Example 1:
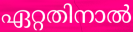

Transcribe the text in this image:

ഏറ്റതിനാൽ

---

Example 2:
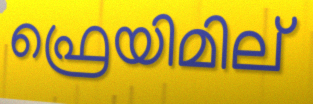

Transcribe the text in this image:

ഫ്രെയിമില്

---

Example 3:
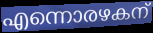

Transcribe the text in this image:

എന്നൊരഴകന്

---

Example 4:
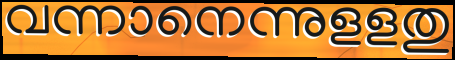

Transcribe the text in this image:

വന്നാനെന്നുളളതു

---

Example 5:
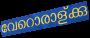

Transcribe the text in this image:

വേറൊരാള്ക്കു